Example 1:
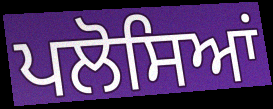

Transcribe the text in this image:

ਪਲੋਸਿਆਂ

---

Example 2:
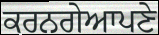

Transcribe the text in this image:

ਕਰਨਗੇਆਪਣੇ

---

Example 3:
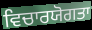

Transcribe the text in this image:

ਵਿਚਾਰਯੋਗਤਾ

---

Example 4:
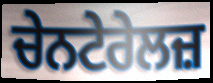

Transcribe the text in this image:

ਚੇਨਟੇਰੇਲਜ਼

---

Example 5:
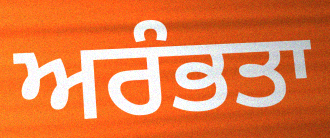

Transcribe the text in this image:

ਅਰੰਭਤਾ